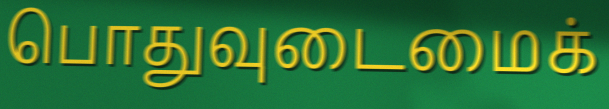
பொதுவுடைமைக்